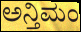
ಅನ್ತಿಮಂ